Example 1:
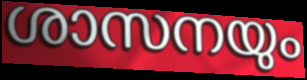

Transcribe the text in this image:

ശാസനയും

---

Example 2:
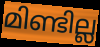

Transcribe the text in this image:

മിണ്ടില്ല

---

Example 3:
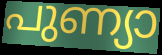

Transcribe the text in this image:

പുണ്യാ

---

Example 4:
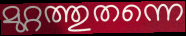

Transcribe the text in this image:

മുറ്റത്തുതന്നെ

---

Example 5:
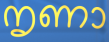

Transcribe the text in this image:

നൃണാ